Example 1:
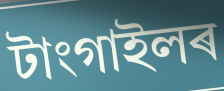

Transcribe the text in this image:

টাংগাইলৰ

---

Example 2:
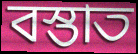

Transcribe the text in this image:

বস্তাত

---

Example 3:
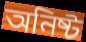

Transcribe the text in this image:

অনিষ্ট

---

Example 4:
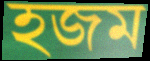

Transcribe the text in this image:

হজম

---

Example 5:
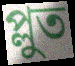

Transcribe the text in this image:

প্লুত